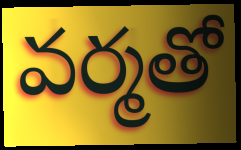
వర్మతో